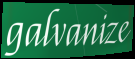
galvanize